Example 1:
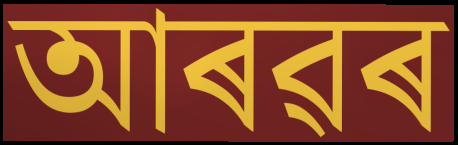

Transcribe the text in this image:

আৰৱৰ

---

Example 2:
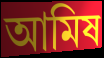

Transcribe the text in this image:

আমিষ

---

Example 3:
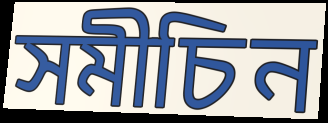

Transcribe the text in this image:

সমীচিন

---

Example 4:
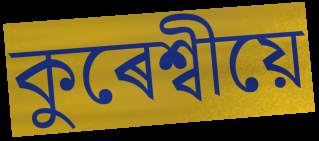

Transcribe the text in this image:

কুৰেশ্বীয়ে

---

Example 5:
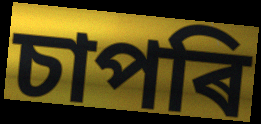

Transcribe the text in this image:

চাপৰি